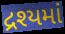
દ્રશ્યમાં